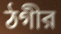
ঠগীর